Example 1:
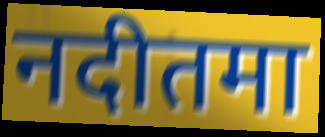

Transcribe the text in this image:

नदीतमा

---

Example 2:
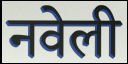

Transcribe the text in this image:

नवेली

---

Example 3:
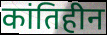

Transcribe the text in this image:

कांतिहीन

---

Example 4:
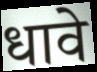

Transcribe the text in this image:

धावे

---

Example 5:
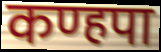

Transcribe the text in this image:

कण्हपा